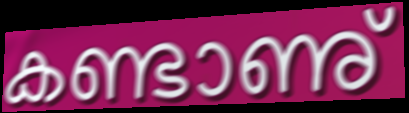
കണ്ടാണു്